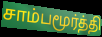
சாம்பமூர்த்தி